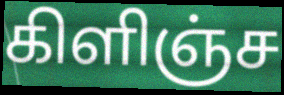
கிளிஞ்ச